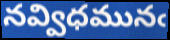
నవ్విధమునఁ